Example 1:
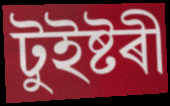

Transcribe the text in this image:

টুইষ্টৰী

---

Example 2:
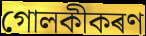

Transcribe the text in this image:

গোলকীকৰণ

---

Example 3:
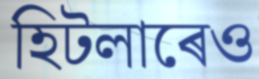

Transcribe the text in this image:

হিটলাৰেও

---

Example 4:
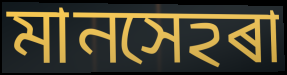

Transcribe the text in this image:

মানসেহৰা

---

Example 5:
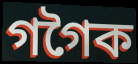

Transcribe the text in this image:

গগৈক